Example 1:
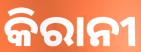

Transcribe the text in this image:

କିରାନୀ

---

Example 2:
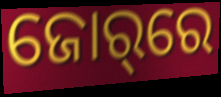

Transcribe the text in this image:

ଜୋର୍‌ରେ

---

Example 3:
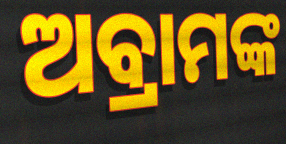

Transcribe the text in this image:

ଅବ୍ରାମଙ୍କ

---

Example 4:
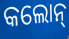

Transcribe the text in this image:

କଲୋନ୍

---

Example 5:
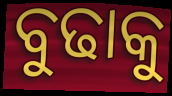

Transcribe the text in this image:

ବୁଢାକୁ